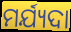
ମର୍ଯ୍ୟଦା